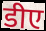
डीए